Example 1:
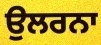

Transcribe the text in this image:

ਉਲਰਨਾ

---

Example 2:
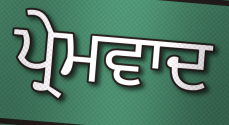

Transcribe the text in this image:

ਪ੍ਰੇਮਵਾਦ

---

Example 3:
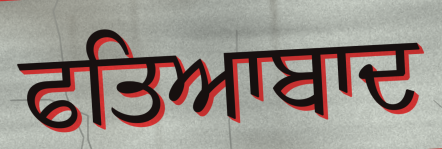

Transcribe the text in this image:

ਫਤਿਆਬਾਦ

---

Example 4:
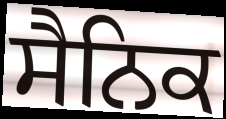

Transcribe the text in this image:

ਸੈਨਿਕ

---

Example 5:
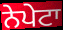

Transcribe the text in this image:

ਨੇਪੇਟਾ